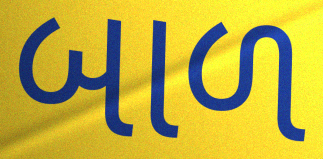
બાળ